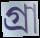
গ্রা